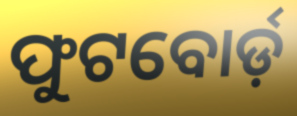
ଫୁଟବୋର୍ଡ଼